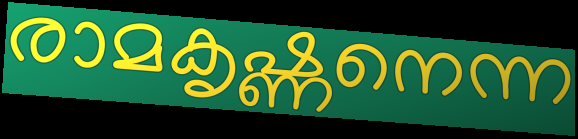
രാമകൃഷ്ണനെന്ന